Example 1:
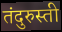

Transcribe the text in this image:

तंदुरुस्ती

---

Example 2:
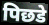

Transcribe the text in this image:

पिछडे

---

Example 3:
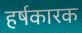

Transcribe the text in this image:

हर्षकारक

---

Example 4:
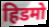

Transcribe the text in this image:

हिडमो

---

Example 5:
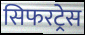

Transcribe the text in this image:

सिफरट्रेस